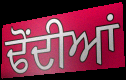
ਢੋਂਦੀਆਂ